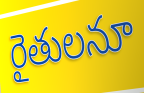
రైతులనూ